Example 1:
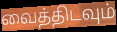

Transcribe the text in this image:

வைத்திடவும்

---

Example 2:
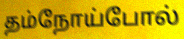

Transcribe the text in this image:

தம்நோய்போல்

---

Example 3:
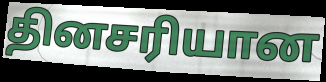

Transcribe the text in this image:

தினசரியான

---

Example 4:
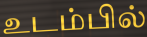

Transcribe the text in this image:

உடம்பில்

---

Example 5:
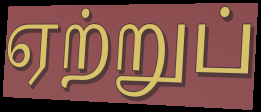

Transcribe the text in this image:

ஏற்றுப்